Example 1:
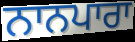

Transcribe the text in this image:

ਨਾਨਪਾਰਾ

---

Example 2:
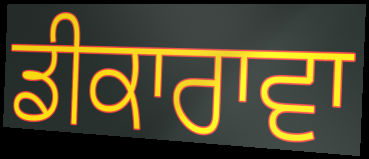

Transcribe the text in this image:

ਡੀਕਾਰਾਵਾ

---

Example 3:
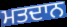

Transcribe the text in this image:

ਮਤਦਾਨ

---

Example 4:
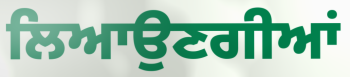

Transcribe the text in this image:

ਲਿਆਉਣਗੀਆਂ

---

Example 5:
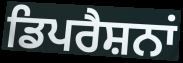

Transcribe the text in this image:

ਡਿਪਰੈਸ਼ਨਾਂ